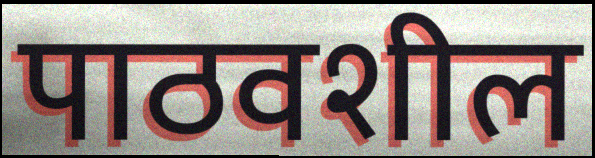
पाठवशील